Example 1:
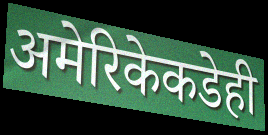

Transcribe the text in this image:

अमेरिकेकडेही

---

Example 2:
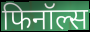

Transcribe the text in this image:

फिनॉल्स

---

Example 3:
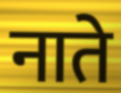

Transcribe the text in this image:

नाते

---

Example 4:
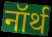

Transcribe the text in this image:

नॉर्थ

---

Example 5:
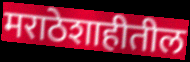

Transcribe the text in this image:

मराठेशाहीतील